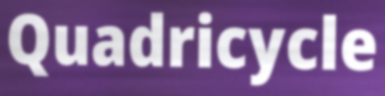
Quadricycle